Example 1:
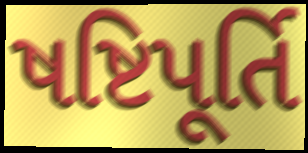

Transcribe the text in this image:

ષષ્ટિપૂર્તિ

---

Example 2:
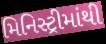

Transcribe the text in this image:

મિનિસ્ટ્રીમાંથી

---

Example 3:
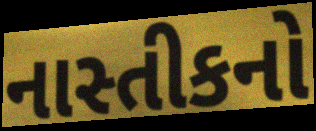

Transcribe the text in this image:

નાસ્તીકનો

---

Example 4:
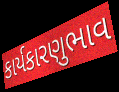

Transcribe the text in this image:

કાર્યકારણુભાવ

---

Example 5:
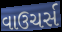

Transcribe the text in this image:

વાઉચર્સ